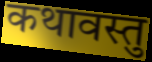
कथावस्तु